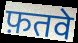
फ़तवे